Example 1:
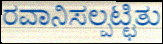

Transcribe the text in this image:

ರವಾನಿಸಲ್ಪಟ್ಟಿತು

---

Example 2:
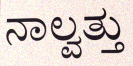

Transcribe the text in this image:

ನಾಲ್ವತ್ತು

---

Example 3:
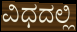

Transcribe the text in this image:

ವಿಧದಲ್ಲಿ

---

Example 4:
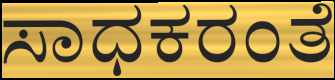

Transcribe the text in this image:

ಸಾಧಕರಂತೆ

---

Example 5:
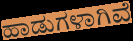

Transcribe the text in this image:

ಹಾಡುಗಳಾಗಿವೆ